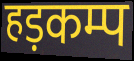
हड़कम्प